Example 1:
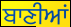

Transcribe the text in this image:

ਬਾਣੀਆਂ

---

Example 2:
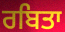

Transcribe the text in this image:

ਰਬਿਤਾ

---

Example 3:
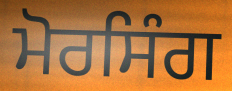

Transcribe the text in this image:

ਮੋਰਸਿੰਗ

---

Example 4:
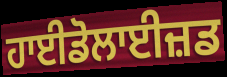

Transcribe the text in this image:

ਹਾਈਡੋਲਾਈਜ਼ਡ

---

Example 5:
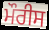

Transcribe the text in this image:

ਮੌਰੀਸ